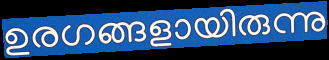
ഉരഗങ്ങളായിരുന്നു